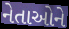
નેતાઓને